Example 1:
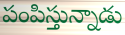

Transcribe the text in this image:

పంపిస్తున్నాడు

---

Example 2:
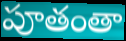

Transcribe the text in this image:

పూతంతా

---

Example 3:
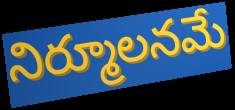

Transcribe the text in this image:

నిర్మూలనమే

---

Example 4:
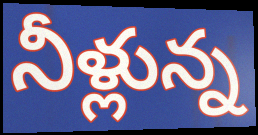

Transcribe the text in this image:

నీళ్లున్న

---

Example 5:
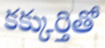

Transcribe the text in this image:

కక్కుర్తితో